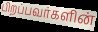
பிறப்பவர்களின்